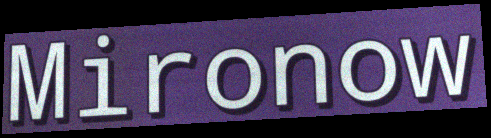
Mironow